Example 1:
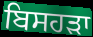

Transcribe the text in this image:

ਬਿਸਹੜਾ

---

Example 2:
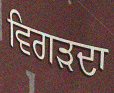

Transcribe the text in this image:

ਵਿਗੜਦਾ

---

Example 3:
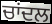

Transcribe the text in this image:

ਚਾਂਦਲ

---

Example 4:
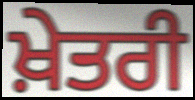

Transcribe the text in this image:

ਖ਼ੇਤਰੀ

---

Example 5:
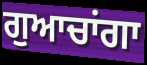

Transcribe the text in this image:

ਗੁਆਚਾਂਗਾ